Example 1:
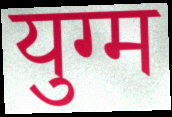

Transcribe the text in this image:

युग्म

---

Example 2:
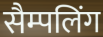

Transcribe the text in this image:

सैम्पलिंग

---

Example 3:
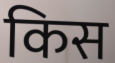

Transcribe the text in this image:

किस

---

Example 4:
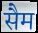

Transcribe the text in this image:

सैम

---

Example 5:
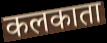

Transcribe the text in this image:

कलकाता